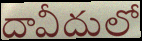
దావీదులో